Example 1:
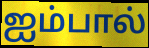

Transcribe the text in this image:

ஐம்பால்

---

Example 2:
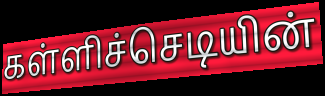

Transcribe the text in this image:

கள்ளிச்செடியின்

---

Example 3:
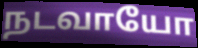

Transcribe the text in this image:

நடவாயோ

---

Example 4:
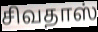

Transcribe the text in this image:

சிவதாஸ்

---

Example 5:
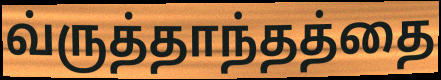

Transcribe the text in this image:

வ்ருத்தாந்தத்தை